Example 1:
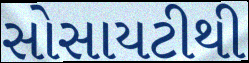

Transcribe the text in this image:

સોસાયટીથી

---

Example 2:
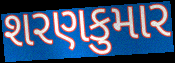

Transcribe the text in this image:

શરણકુમાર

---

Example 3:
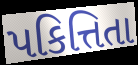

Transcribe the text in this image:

પકિત્તિતા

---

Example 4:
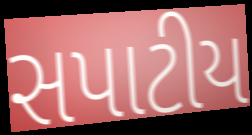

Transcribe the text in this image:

સપાટીય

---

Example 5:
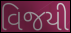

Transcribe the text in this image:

વિજયી